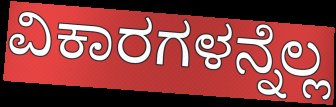
ವಿಕಾರಗಳನ್ನೆಲ್ಲ